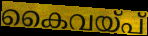
കൈവയ്പ്